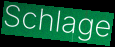
Schlage